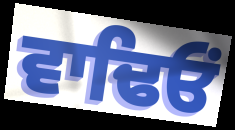
ਵਾਢਿਓਂ